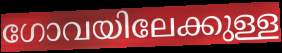
ഗോവയിലേക്കുള്ള